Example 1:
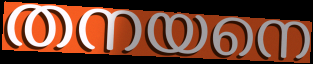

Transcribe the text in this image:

തനയനെ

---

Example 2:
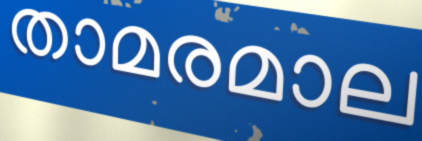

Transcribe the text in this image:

താമരമാല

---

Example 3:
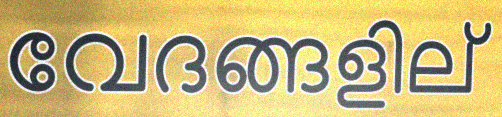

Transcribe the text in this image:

വേദങ്ങളില്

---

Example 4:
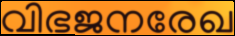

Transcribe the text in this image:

വിഭജനരേഖ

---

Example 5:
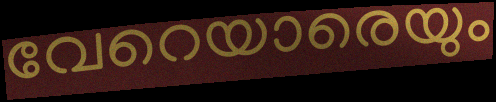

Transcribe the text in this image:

വേറെയാരെയും